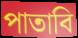
পাতাবি